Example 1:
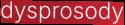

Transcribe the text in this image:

dysprosody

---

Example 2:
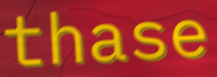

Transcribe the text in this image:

thase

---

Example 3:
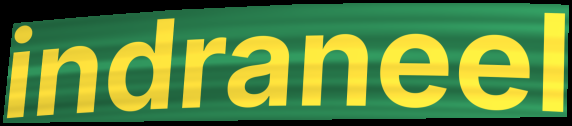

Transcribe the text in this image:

indraneel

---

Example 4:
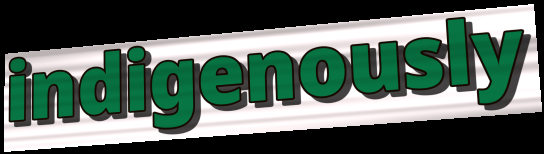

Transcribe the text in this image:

indigenously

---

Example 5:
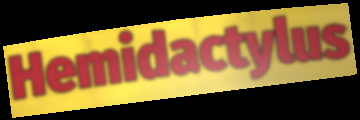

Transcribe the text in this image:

Hemidactylus